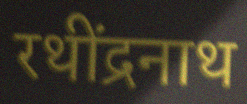
रथींद्रनाथ